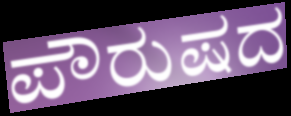
ಪೌರುಷದ